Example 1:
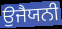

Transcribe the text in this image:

ਉਜੈਯਨੀ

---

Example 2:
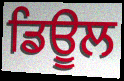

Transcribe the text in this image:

ਡਿਊਲ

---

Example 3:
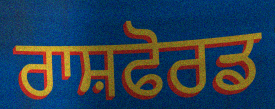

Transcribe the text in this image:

ਰਾਸ਼ਫੋਰਡ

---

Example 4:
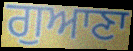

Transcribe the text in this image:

ਗੁਆਣਾ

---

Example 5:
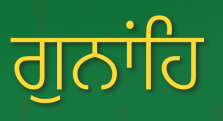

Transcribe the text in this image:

ਗੁਨਾਂਹਿ